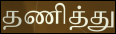
தணித்து